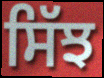
ਸਿੱਝ